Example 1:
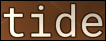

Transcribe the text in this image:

tide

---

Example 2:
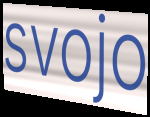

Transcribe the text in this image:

svojo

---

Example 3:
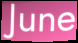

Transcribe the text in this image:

June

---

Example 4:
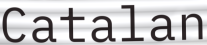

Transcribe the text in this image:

Catalan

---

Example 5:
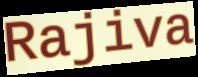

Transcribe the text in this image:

Rajiva